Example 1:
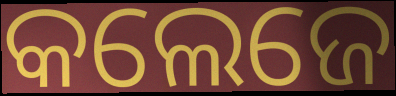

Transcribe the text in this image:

କଲେଜେ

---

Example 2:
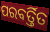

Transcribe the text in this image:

ପରବର୍ତ୍ତିତ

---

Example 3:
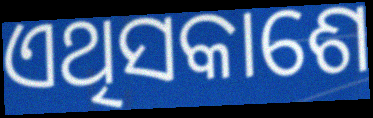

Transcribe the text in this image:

ଏଥିସକାଶେ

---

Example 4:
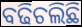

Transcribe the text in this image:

ବଢିଚଲିଛି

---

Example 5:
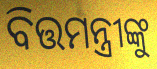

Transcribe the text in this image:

ବିତ୍ତମନ୍ତ୍ରୀଙ୍କୁ